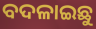
ବଦଳାଇଛୁ